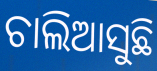
ଚାଲିଆସୁଛି